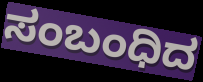
ಸಂಬಂಧಿದ